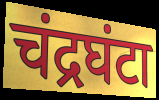
चंद्रघंटा